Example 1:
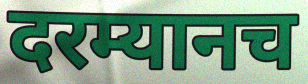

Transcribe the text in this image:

दरम्यानच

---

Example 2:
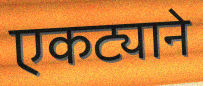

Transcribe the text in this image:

एकट्याने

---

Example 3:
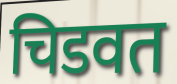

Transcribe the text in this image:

चिडवत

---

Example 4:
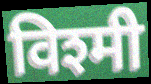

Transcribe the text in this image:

विश्मी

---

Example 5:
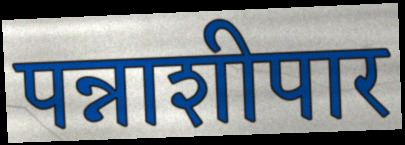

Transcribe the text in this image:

पन्नाशीपार